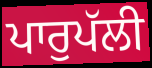
ਪਾਰੁਪੱਲੀ